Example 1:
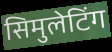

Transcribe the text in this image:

सिमुलेटिंग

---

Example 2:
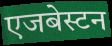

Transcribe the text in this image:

एजबेस्टन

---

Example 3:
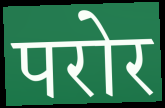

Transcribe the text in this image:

परोर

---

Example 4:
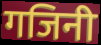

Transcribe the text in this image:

गजिनी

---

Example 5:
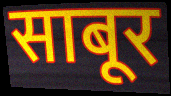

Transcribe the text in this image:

साबूर